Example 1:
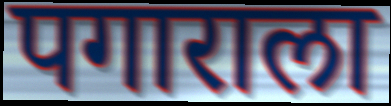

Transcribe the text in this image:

पगाराला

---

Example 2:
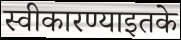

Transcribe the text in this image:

स्वीकारण्याइतके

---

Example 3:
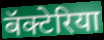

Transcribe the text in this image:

बॅक्टेरिया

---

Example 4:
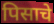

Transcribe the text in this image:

पिसाचे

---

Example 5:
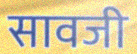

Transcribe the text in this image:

सावजी